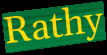
Rathy